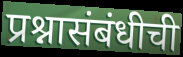
प्रश्नासंबंधीची